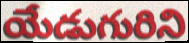
యేడుగురిని